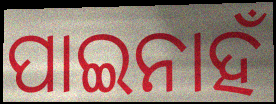
ପାଇନାହଁ